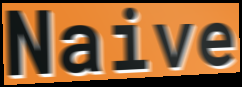
Naive